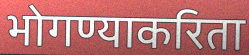
भोगण्याकरिता